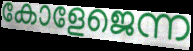
കോളേജെന്ന